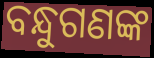
ବନ୍ଧୁଗଣଙ୍କ